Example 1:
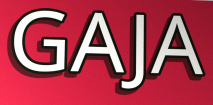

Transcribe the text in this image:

GAJA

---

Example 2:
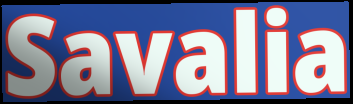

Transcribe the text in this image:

Savalia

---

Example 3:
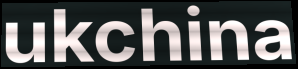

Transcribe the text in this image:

ukchina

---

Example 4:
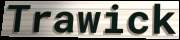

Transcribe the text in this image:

Trawick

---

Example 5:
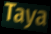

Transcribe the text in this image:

Taya